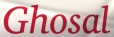
Ghosal